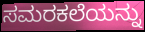
ಸಮರಕಲೆಯನ್ನು